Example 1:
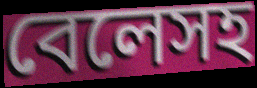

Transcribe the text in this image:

বেলেসহ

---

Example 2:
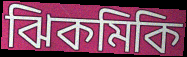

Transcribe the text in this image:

ঝিকমিকি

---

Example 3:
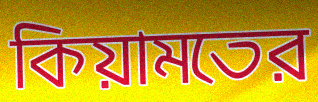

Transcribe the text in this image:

কিয়ামতের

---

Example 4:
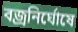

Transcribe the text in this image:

বজ্রনির্ঘোষে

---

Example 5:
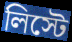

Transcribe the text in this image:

লিস্টে